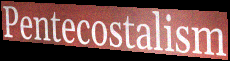
Pentecostalism